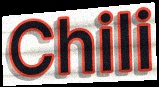
Chili